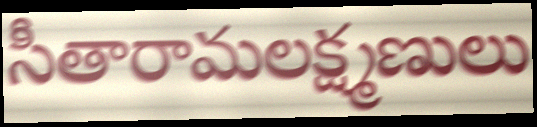
సీతారామలక్ష్మణులు